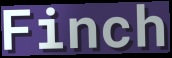
Finch